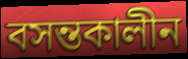
বসন্তকালীন